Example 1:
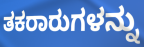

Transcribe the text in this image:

ತಕರಾರುಗಳನ್ನು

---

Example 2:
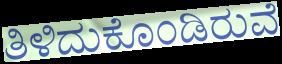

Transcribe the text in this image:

ತಿಳಿದುಕೊಂಡಿರುವೆ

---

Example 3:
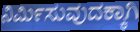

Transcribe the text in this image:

ನಿರ್ಮಿಸುವುದಕ್ಕಾಗಿ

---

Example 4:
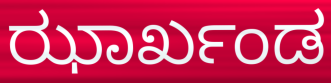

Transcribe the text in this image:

ಝಾರ್ಖಂಡ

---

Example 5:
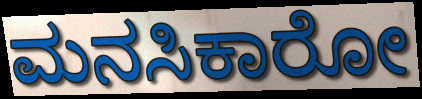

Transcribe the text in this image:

ಮನಸಿಕಾರೋ